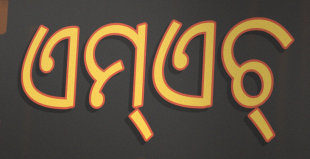
ଏମ୍ଏଚ୍